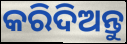
କରିଦିଅନ୍ତୁ